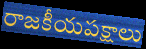
రాజకీయపక్షాలు